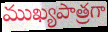
ముఖ్యపాత్రగా